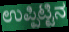
ಉಪ್ಪಿಟ್ಟಿನ